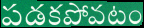
పడకపోవటం